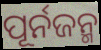
ପୂର୍ନଜନ୍ମ